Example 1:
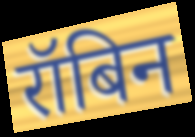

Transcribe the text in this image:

रॉबिन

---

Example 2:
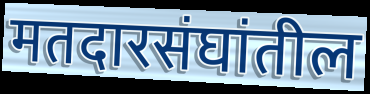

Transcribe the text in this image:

मतदारसंघांतील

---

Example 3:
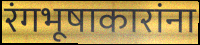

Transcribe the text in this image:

रंगभूषाकारांना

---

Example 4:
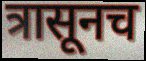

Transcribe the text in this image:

त्रासूनच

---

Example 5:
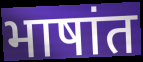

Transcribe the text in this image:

भाषांत